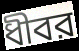
ধীবর